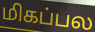
மிகப்பல